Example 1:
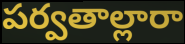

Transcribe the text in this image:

పర్వతాల్లారా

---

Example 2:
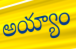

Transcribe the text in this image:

అయ్యాం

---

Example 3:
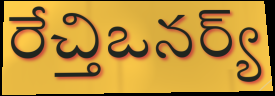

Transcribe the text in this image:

రేచ్తిఒనర్య్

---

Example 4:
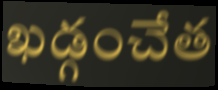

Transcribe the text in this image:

ఖడ్గంచేత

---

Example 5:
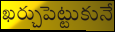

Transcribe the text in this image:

ఖర్చుపెట్టుకునే